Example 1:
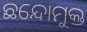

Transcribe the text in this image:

ଛନ୍ଦୋମୁକ୍ତ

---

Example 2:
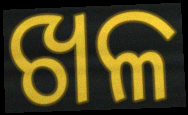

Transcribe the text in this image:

ଖଳ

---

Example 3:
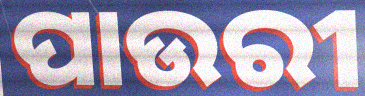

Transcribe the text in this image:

ପାଉରୀ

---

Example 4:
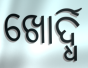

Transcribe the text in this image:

ଖୋର୍ଦ୍ଧି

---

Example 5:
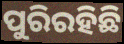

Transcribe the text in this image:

ପୁରିରହିଛି